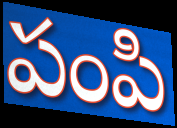
పంపి